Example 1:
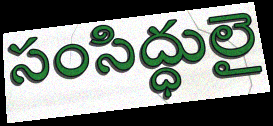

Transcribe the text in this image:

సంసిద్ధులై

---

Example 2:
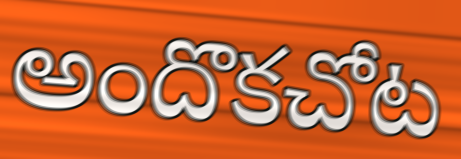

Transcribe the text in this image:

అందొకచోట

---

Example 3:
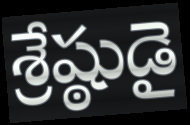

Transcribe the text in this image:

శ్రేష్ఠుడై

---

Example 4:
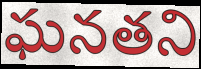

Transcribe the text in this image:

ఘనతని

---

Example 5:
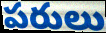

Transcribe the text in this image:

పరులు